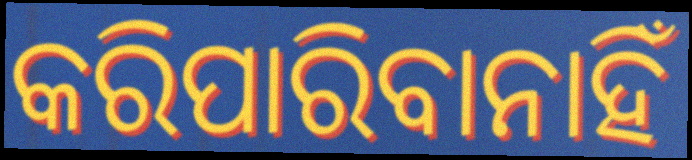
କରିପାରିବାନାହିଁ